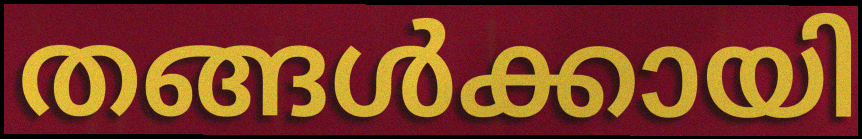
തങ്ങൾക്കായി